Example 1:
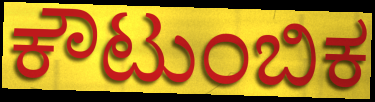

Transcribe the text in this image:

ಕೌಟುಂಬಿಕ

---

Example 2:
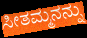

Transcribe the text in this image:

ಸೀತಮ್ಮನನ್ನು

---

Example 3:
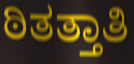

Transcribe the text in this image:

ಠಿತತ್ತಾತಿ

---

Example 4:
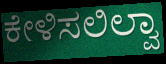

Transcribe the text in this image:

ಕೇಳಿಸಲಿಲ್ವಾ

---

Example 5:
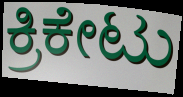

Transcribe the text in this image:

ಕ್ರಿಕೇಟು